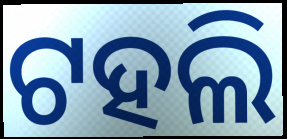
ଟହଲି